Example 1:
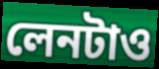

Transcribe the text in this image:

লেনটাও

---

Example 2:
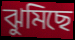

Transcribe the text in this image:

ঝুমিছে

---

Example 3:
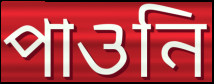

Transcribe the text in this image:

পাওনি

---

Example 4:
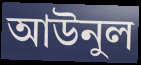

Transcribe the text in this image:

আউনুল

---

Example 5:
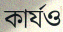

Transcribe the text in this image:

কার্যও